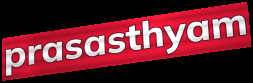
prasasthyam